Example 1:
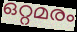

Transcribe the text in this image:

ഒറ്റമരം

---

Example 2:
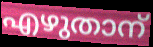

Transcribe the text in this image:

എഴുതാന്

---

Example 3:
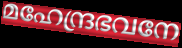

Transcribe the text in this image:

മഹേന്ദ്രഭവനേ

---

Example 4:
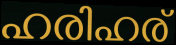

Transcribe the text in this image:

ഹരിഹര്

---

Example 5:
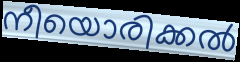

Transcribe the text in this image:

നീയൊരിക്കൽ